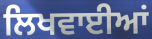
ਲਿਖਵਾਈਆਂ